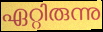
ഏറ്റിരുന്നു